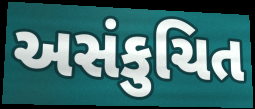
અસંકુચિત